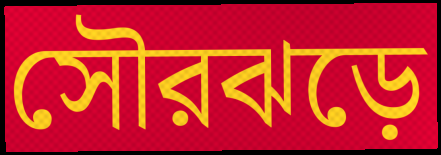
সৌরঝড়ে